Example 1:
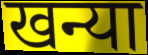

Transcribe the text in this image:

खन्या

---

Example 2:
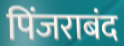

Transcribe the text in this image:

पिंजराबंद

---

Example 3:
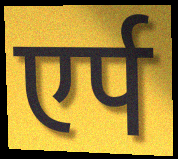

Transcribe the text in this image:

एर्प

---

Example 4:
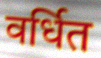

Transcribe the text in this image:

वर्धित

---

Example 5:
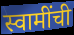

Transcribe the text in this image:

स्वामींची